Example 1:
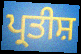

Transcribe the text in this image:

ਪ੍ਰਤੀਸ਼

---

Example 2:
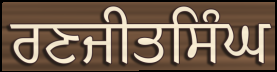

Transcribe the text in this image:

ਰਣਜੀਤਸਿੰਘ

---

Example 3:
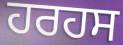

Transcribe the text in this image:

ਹਰਹਸ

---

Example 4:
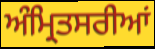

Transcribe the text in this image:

ਅੰਮ੍ਰਿਤਸਰੀਆਂ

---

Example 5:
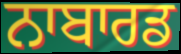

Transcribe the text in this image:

ਨਾਬਾਰਡ